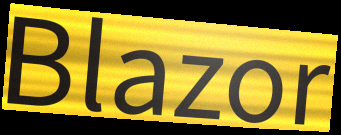
Blazor